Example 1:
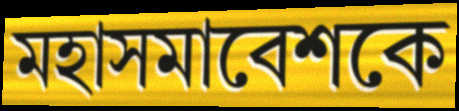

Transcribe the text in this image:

মহাসমাবেশকে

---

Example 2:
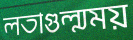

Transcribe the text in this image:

লতাগুল্মময়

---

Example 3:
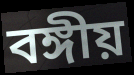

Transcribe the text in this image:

বঙ্গীয়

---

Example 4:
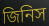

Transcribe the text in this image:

জিনিস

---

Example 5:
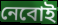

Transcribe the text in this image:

নেবোই